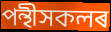
পন্থীসকলৰ